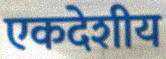
एकदेशीय